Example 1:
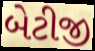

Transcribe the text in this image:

બેટીજી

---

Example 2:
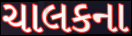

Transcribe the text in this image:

ચાલકના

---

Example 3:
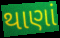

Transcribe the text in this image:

થાણાં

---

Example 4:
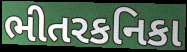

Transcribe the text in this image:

ભીતરકનિકા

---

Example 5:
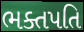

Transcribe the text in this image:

ભક્તપતિ